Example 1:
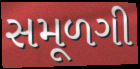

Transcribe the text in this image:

સમૂળગી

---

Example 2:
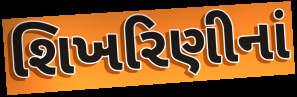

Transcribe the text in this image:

શિખરિણીનાં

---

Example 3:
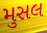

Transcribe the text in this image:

મુસલ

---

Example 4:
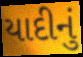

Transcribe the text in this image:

યાદીનું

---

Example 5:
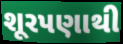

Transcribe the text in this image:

શૂરપણાથી